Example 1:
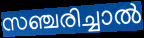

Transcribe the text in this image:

സഞ്ചരിച്ചാൽ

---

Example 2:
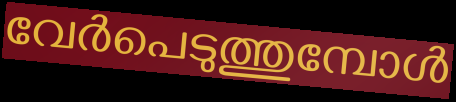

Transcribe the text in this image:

വേർപെടുത്തുമ്പോൾ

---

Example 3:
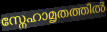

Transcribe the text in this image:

സ്നേഹാമൃതത്തിൽ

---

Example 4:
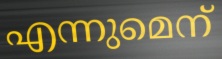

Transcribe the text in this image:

എന്നുമെന്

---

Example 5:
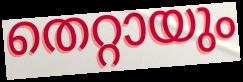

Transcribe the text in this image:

തെറ്റായും